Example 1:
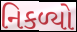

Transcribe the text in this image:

નિકળ્યો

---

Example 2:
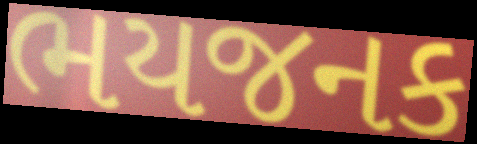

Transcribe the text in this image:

ભયજનક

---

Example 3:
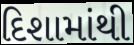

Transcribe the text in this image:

દિશામાંથી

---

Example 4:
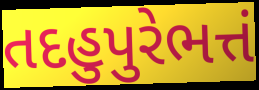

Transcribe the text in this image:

તદહુપુરેભત્તં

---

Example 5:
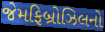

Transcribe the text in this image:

જેમફિબ્રોઝિલનો